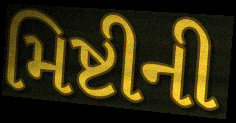
મિષ્ટીની